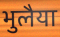
भुलैया